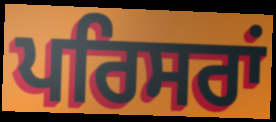
ਪਰਿਸਰਾਂ